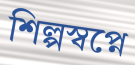
শিল্পস্বপ্নে